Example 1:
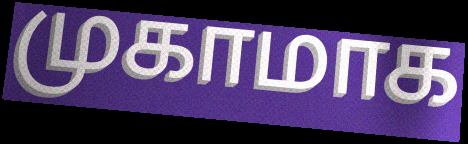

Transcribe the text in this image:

முகாமாக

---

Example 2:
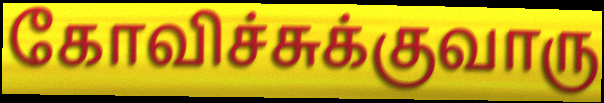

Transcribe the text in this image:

கோவிச்சுக்குவாரு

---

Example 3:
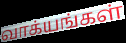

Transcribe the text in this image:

வாக்யங்கள்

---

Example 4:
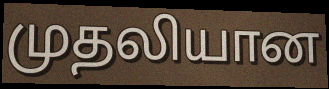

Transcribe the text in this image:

முதலியான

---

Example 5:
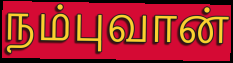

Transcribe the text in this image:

நம்புவான்